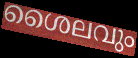
ശൈലവും